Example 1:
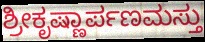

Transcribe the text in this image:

ಶ್ರೀಕೃಷ್ಣಾರ್ಪಣಮಸ್ತು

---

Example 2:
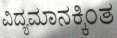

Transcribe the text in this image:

ವಿದ್ಯಮಾನಕ್ಕಿಂತ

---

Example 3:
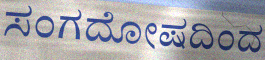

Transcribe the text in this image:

ಸಂಗದೋಷದಿಂದ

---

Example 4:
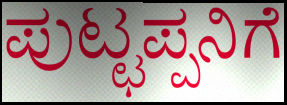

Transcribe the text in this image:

ಪುಟ್ಟಪ್ಪನಿಗೆ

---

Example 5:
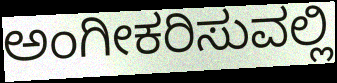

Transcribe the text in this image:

ಅಂಗೀಕರಿಸುವಲ್ಲಿ